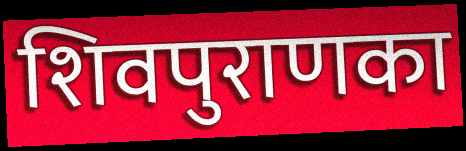
शिवपुराणका